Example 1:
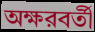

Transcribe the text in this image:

অক্ষরবর্তী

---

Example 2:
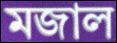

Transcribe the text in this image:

মজাল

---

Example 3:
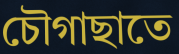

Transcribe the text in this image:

চৌগাছাতে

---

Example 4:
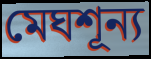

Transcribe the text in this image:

মেঘশূন্য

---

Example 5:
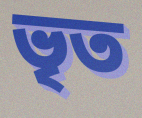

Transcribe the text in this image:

ভৃত